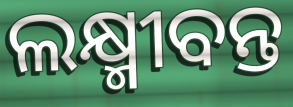
ଲକ୍ଷ୍ମୀବନ୍ତ